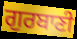
ਗੁਰਬਾਣੀ